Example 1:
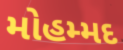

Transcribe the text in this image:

મોહમ્મદ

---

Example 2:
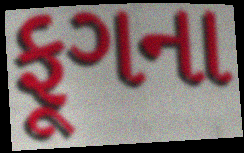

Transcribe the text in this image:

ફૂગના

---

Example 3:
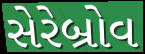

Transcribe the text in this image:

સેરેબ્રોવ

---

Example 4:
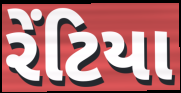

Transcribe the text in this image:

રેંટિયા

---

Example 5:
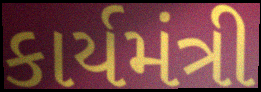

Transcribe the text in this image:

કાર્યમંત્રી